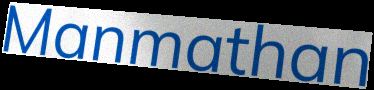
Manmathan